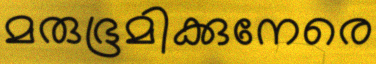
മരുഭൂമിക്കുനേരെ